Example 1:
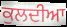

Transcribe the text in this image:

ਕੁਲਦੀਆ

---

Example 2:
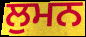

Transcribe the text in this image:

ਲੁਮਨ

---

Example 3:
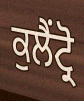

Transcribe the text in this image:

ਕੁਲੈਂਟ੍ਰੋ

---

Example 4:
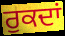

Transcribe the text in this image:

ਰੁਕਦਾਂ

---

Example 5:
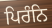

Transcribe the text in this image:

ਪਿਰੰਨਿ